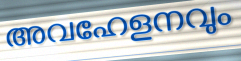
അവഹേളനവും